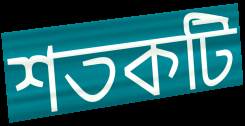
শতকটি